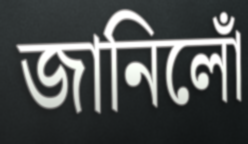
জানিলোঁ